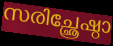
സരിച്ഛ്രേഷ്ഠാ